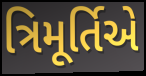
ત્રિમૂર્તિએ